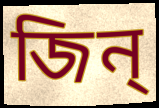
জিন্